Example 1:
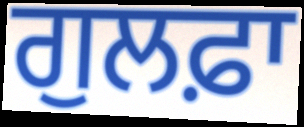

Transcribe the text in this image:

ਗੁਲਫ਼ਾ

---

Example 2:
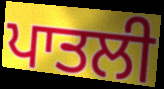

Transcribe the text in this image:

ਪਾਤਲੀ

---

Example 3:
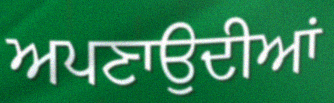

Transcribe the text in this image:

ਅਪਣਾਉਦੀਆਂ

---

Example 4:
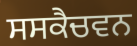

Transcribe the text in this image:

ਸਸਕੈਚਵਨ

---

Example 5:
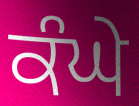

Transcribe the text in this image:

ਕੰਘੇ